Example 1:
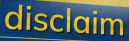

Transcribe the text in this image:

disclaim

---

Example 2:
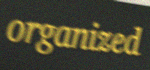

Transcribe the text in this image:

organized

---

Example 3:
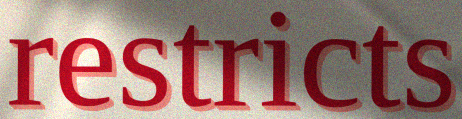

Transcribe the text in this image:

restricts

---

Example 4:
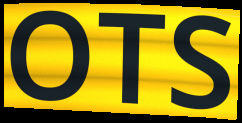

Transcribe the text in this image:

OTS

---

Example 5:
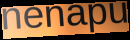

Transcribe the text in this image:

nenapu